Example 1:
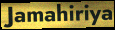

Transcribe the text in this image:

Jamahiriya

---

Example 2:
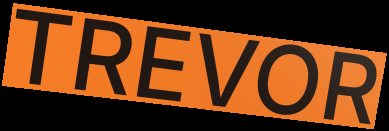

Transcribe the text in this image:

TREVOR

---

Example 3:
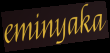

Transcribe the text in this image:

eminyaka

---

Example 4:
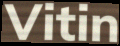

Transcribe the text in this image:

Vitin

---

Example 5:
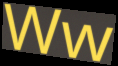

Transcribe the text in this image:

Ww